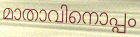
മാതാവിനൊപ്പം